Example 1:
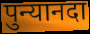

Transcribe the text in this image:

पुन्यानदा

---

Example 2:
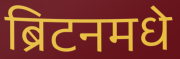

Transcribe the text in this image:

ब्रिटनमधे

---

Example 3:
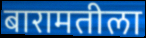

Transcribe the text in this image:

बारामतीला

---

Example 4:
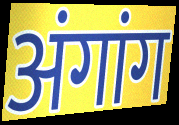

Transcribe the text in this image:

अंगांग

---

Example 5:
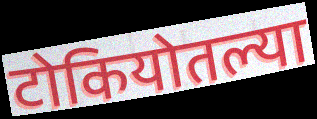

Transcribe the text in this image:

टोकियोतल्या